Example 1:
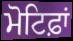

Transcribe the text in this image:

ਮੋਟਿਫ਼ਾਂ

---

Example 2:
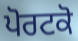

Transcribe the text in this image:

ਪੋਰਟਕੋ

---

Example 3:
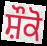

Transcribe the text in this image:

ਸ਼ੌਕੋ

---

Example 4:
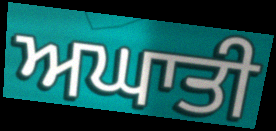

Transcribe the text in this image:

ਅਘਾਤੀ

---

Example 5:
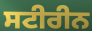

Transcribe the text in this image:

ਸਟੀਰੀਨ